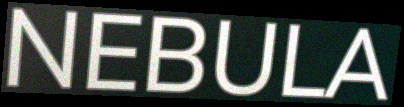
NEBULA